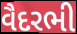
વૈદરભી